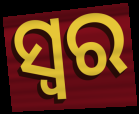
ସ୍ବର